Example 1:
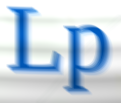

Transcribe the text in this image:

Lp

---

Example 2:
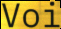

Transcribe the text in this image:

Voi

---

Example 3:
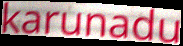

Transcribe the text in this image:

karunadu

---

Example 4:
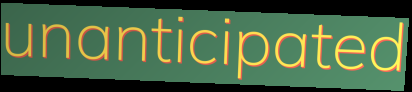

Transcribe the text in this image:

unanticipated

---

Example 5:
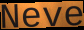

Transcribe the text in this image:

Neve